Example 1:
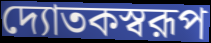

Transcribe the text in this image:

দ্যোতকস্বরূপ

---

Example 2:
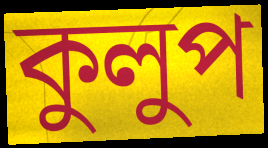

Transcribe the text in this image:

কুলুপ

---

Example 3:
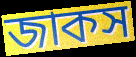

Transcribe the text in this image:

জাকস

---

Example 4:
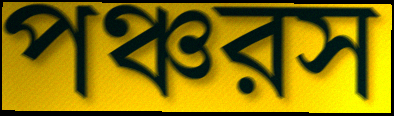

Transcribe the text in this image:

পঞ্চরস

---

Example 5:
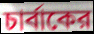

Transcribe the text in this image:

চার্বাকের